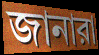
জানারা